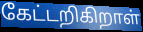
கேட்டறிகிறாள்